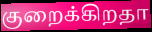
குறைக்கிறதா